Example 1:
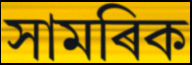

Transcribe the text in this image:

সামৰিক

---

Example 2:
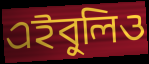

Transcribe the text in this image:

এইবুলিও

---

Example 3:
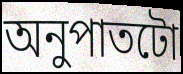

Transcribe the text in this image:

অনুপাতটো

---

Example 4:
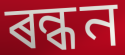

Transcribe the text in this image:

ৰন্ধন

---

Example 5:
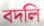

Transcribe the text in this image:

বদলি